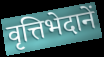
वृत्तिभेदानें